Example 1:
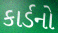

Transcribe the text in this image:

કાર્ડનો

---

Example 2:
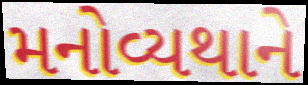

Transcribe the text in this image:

મનોવ્યથાને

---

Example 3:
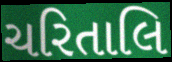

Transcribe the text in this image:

ચરિતાલિ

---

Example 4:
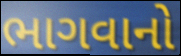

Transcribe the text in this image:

ભાગવાનો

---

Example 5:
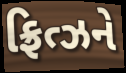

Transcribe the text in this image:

ફ્રિત્ઝને